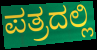
ಪತ್ರದಲ್ಲಿ